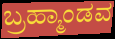
ಬ್ರಹ್ಮಾಂಡವ